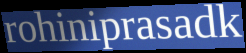
rohiniprasadk